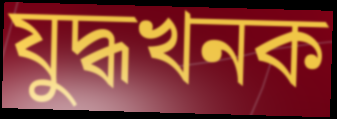
যুদ্ধখনক